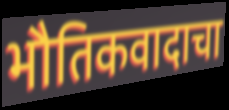
भौतिकवादाचा